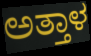
ಅತ್ತಾಳ